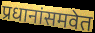
प्रधानांसमवेत